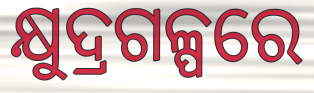
କ୍ଷୁଦ୍ରଗଳ୍ପରେ